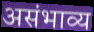
असंभाव्य